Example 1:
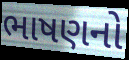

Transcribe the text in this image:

ભાષણનો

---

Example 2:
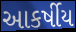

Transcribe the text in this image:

આકર્ષીય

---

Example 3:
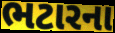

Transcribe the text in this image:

ભટારના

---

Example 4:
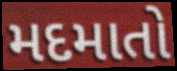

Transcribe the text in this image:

મદમાતો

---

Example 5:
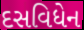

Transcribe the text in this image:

દસવિધેન